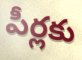
పీర్లకు